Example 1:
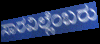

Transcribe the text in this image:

ಸಾರವಿಲ್ಲೆಂಬರು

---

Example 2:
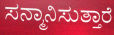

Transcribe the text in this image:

ಸನ್ಮಾನಿಸುತ್ತಾರೆ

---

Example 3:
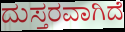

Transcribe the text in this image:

ದುಸ್ತರವಾಗಿದೆ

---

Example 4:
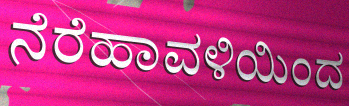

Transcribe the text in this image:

ನೆರೆಹಾವಳಿಯಿಂದ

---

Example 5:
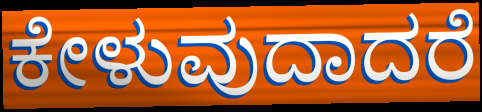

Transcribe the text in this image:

ಕೇಳುವುದಾದರೆ